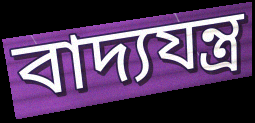
বাদ্যযন্ত্র